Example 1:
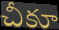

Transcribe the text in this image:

చీకూ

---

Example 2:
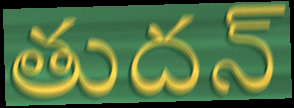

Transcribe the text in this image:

తుదన్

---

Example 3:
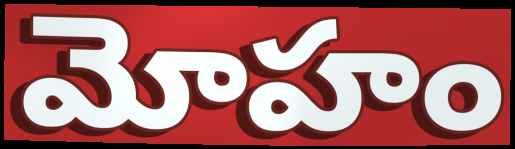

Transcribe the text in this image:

మోహం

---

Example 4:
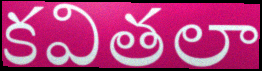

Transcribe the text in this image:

కవితలా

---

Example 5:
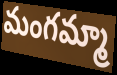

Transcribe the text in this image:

మంగమ్మా